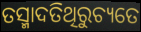
ତସ୍ମାଦତିଥିରୁଚ୍ୟତେ